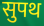
सुपथ